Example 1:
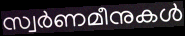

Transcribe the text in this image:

സ്വർണമീനുകൾ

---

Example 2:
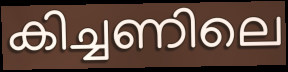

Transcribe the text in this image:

കിച്ചണിലെ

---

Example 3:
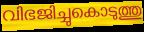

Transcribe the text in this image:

വിഭജിച്ചുകൊടുത്തു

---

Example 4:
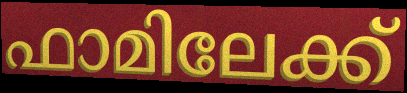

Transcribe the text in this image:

ഫാമിലേക്ക്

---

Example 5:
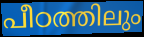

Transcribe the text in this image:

പീഠത്തിലും